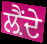
ਲ਼ੈਂਦੇ